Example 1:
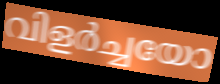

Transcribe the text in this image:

വിളർച്ചയോ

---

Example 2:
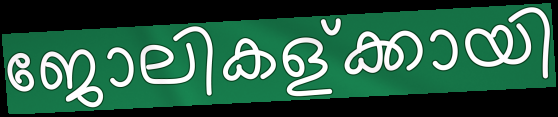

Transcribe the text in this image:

ജോലികള്ക്കായി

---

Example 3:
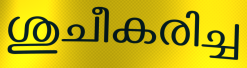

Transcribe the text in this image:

ശുചീകരിച്ച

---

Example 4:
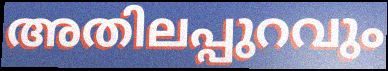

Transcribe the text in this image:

അതിലപ്പുറവും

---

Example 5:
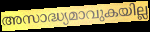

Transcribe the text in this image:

അസാദ്ധ്യമാവുകയില്ല